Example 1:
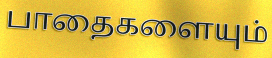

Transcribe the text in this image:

பாதைகளையும்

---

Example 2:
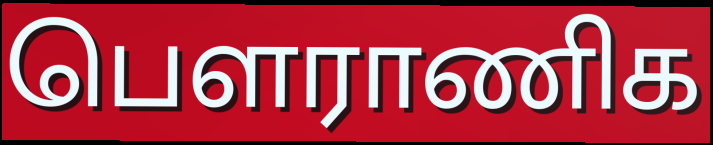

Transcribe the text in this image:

பௌராணிக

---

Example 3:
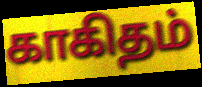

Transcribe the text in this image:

காகிதம்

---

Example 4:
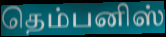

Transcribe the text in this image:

தெம்பனிஸ்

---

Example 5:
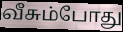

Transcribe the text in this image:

வீசும்போது